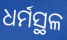
ଧର୍ମସ୍ଥଳ